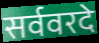
सर्ववरदे